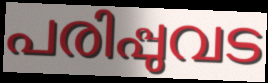
പരിപ്പുവട